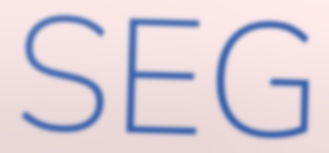
SEG